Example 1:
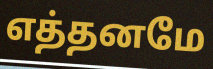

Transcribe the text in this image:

எத்தனமே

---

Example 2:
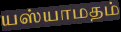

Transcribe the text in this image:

யஸ்யாமதம்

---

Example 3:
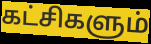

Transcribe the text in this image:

கட்சிகளும்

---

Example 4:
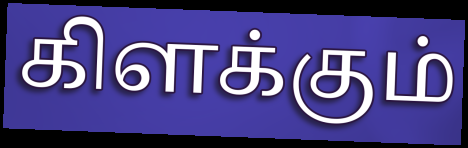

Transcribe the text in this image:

கிளக்கும்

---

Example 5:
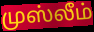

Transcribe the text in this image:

முஸ்லீம்